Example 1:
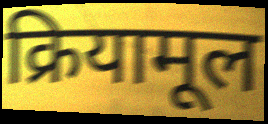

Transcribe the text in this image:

क्रियामूल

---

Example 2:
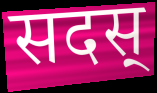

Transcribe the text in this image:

सदस्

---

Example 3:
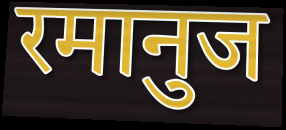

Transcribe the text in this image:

रमानुज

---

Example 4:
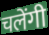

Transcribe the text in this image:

चलेंगी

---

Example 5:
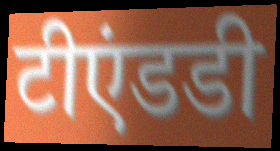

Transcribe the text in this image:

टीएंडडी